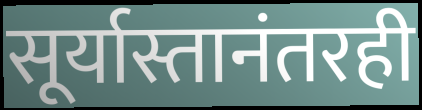
सूर्यास्तानंतरही